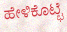
ಹೇಳಿಕೊಟ್ಟೆ